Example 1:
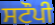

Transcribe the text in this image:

ਸਟੌਪੀ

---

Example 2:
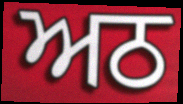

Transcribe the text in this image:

ਅਠ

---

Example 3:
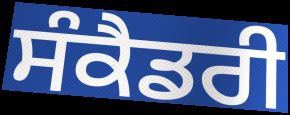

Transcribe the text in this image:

ਸੰਕੈਡਰੀ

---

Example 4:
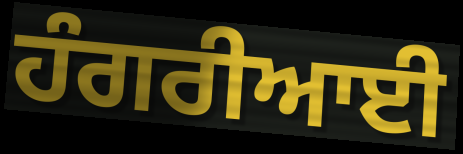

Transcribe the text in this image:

ਹੰਗਰੀਆਈ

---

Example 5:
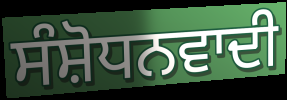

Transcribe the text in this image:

ਸੰਸ਼ੋਧਨਵਾਦੀ